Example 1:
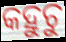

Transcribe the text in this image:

କହୁଚୁ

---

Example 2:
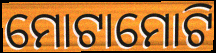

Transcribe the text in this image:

ମୋଟାମୋଟି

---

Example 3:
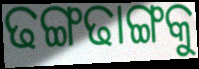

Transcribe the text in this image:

ଢଙ୍ଗଢାଙ୍ଗକୁ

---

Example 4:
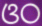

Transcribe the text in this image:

ଓଠ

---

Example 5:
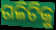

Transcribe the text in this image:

ଗଳିଟିକୁ